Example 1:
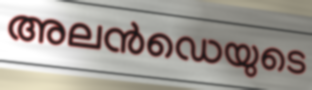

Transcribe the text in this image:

അലൻഡെയുടെ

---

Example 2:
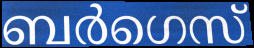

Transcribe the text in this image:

ബർഗെസ്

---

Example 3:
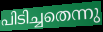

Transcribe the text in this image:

പിടിച്ചതെന്നു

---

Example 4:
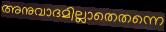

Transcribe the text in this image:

അനുവാദമില്ലാതെതന്നെ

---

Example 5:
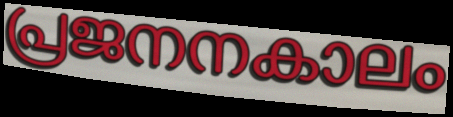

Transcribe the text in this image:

പ്രജനനകാലം